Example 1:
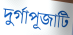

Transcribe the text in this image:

দুর্গাপূজাটি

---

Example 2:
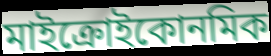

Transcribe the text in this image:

মাইক্রোইকোনমিক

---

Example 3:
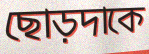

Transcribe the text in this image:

ছোড়দাকে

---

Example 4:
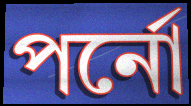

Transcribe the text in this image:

পর্নো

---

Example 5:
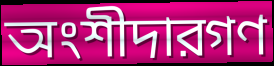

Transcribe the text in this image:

অংশীদারগণ